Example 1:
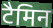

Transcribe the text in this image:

टैमिन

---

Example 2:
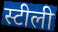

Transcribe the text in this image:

स्टीली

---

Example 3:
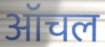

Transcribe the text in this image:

ऑचल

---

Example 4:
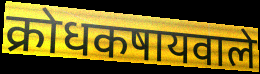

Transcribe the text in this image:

क्रोधकषायवाले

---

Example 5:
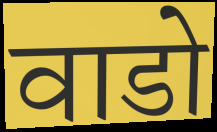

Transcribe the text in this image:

वाडो